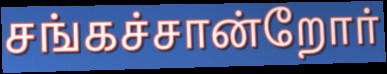
சங்கச்சான்றோர்